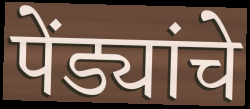
पेंड्यांचे